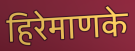
हिरेमाणके